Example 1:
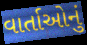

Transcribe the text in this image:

વાર્તાઓનું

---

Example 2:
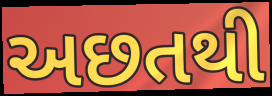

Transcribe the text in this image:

અછતથી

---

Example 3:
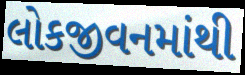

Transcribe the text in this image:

લોકજીવનમાંથી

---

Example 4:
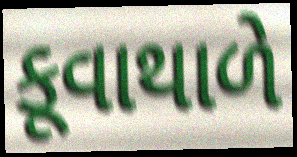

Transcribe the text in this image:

કૂવાથાળે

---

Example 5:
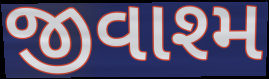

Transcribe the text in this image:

જીવાશ્મ